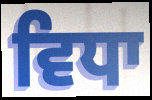
ਵਿਧਾ